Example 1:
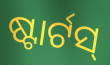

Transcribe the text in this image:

ଷ୍ଟାର୍ଟସ୍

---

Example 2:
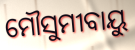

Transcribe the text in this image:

ମୌସୁମୀବାୟୁ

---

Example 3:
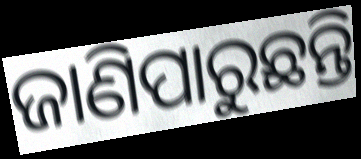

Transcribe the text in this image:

ଜାଣିପାରୁଛନ୍ତି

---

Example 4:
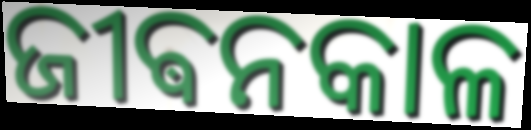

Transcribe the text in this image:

ଜୀଵନକାଳ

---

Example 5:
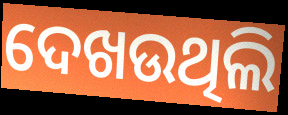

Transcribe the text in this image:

ଦେଖଉଥିଲି